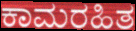
ಕಾಮರಹಿತ